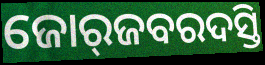
ଜୋର୍‍ଜବରଦସ୍ତି